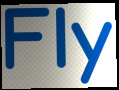
Fly